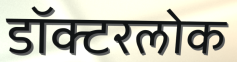
डॉक्टरलोक